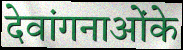
देवांगनाओंके